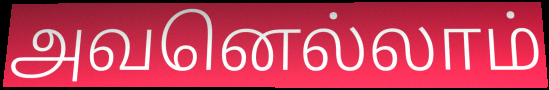
அவனெல்லாம்